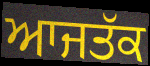
ਆਜਤੱਕ